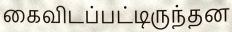
கைவிடப்பட்டிருந்தன